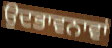
ਉਦਭਾਵਨਾਵਾਂ